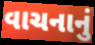
વાચનાનું